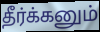
தீர்க்கனும்